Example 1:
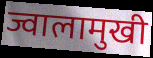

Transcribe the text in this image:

ज्‍वालामुखी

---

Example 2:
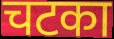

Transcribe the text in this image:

चटका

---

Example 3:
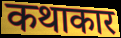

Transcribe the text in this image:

कथाकार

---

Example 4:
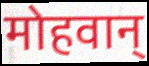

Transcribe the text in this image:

मोहवान्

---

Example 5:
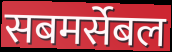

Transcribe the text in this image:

सबमर्सेबल